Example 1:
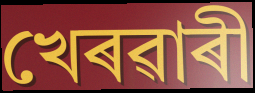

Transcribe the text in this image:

খেৰৱাৰী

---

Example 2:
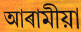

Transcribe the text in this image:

আৰামীয়া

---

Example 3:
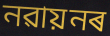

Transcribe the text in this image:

নৱায়নৰ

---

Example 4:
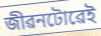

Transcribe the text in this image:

জীৱনটোৱেই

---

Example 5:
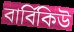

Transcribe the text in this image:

বাৰ্বিকিউ